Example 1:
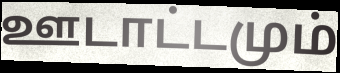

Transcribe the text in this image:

ஊடாட்டமும்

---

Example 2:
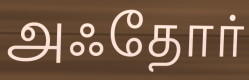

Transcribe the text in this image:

அஃதோர்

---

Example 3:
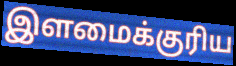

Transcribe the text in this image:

இளமைக்குரிய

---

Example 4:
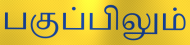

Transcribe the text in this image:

பகுப்பிலும்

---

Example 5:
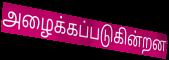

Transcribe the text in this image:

அழைக்கப்படுகின்றன